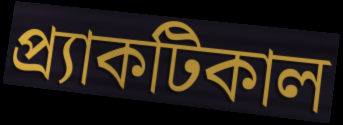
প্র্যাকটিকাল